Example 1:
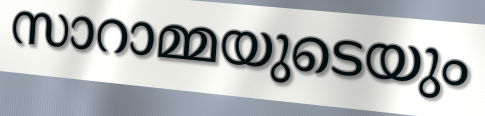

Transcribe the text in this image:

സാറാമ്മയുടെയും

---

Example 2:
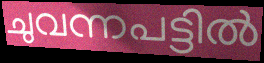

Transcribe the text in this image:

ചുവന്നപട്ടിൽ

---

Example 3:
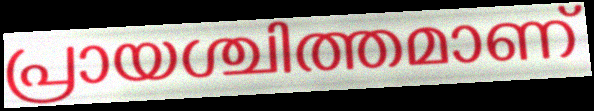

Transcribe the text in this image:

പ്രായശ്ചിത്തമാണ്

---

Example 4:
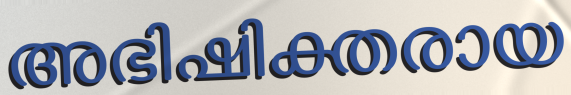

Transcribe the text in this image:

അഭിഷിക്തരായ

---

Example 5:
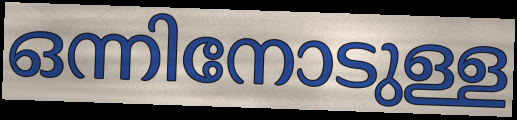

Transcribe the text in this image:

ഒന്നിനോടുള്ള